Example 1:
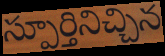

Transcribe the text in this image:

స్పూర్తినిచ్చిన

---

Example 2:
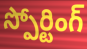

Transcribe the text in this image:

స్పోర్టింగ్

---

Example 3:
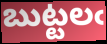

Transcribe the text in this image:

బుట్టలఁ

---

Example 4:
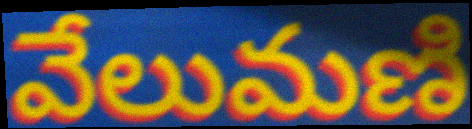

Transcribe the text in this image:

వేలుమణి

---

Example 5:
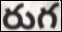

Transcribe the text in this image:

రుగ